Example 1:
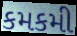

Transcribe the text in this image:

કમકમી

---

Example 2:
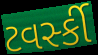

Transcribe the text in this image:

ટવર્સ્કી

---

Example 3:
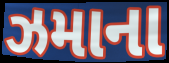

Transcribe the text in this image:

ઝમાના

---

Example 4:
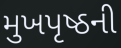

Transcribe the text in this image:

મુખપૃષ્ઠની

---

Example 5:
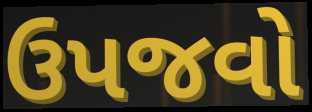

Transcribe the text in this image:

ઉપજવો